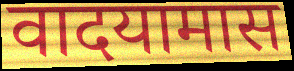
वादयामास